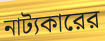
নাট্যকারের